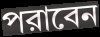
পরাবেন